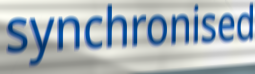
synchronised